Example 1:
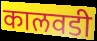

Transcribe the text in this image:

कालवडी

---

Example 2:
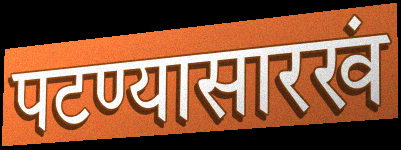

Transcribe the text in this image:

पटण्यासारखं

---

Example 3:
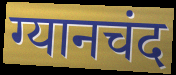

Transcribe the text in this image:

ग्यानचंद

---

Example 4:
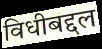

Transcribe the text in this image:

विधीबद्दल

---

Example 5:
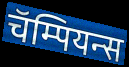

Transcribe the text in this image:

चॅम्पियन्स